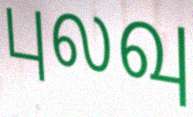
புலவு